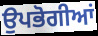
ਉਪਭੋਗੀਆਂ